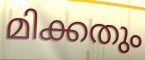
മിക്കതും